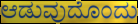
ಆಡುವುದೊಂದು